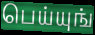
பெய்யுங்